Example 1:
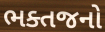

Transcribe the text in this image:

ભક્તજનો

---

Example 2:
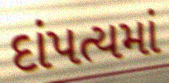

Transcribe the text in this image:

દાંપત્યમાં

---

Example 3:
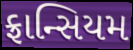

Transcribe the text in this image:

ફ્રાન્સિયમ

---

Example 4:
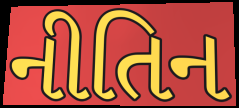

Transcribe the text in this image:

નીતિન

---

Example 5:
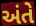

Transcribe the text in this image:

અંતે